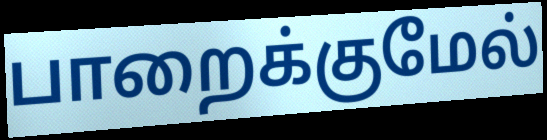
பாறைக்குமேல்